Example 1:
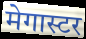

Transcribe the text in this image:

मेगास्टर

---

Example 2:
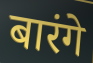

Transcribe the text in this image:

बारंगे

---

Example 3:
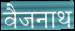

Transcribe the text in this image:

वैजनाथ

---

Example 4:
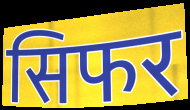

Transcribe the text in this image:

सिफर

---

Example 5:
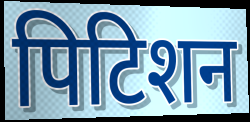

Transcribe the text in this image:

पिटिशन